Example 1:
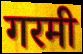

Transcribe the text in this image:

गरमी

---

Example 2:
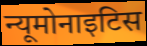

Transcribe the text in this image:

न्यूमोनाइटिस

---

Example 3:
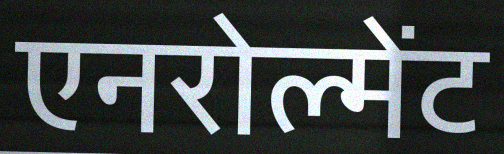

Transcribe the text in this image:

एनरोल्मेंट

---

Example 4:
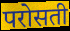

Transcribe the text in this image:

परोसती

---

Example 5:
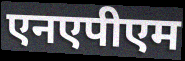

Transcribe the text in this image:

एनएपीएम